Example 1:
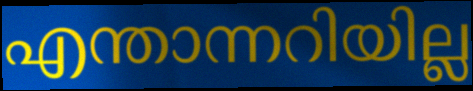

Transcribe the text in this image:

എന്താന്നറിയില്ല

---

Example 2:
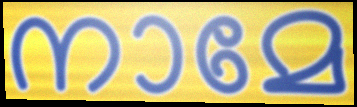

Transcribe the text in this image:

നാമേ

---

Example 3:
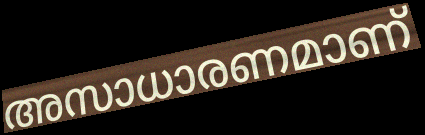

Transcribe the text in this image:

അസാധാരണമാണ്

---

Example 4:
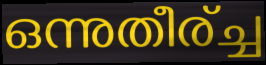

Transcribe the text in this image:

ഒന്നുതീര്ച്ച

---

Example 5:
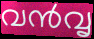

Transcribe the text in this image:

വൻവൃ